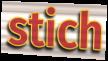
stich